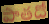
పాతదో